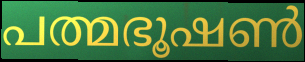
പത്മഭൂഷൺ